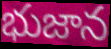
భుజాన